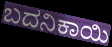
ಬದನಿಕಾಯಿ